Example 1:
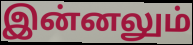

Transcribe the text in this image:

இன்னலும்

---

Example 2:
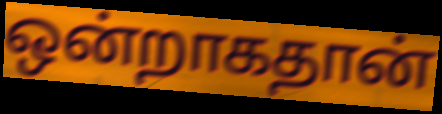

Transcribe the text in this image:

ஒன்றாகதான்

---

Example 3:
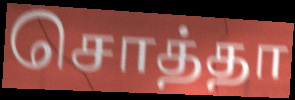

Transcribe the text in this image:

சொத்தா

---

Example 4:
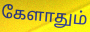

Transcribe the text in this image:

கேளாதும்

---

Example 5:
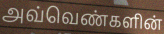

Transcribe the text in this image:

அவ்வெண்களின்